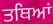
ਤਥਿਆਂ